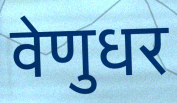
वेणुधर